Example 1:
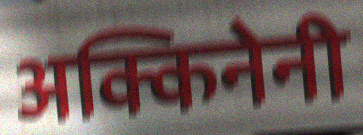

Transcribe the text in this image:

अक्किनेनी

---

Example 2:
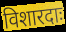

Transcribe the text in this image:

विशारदाः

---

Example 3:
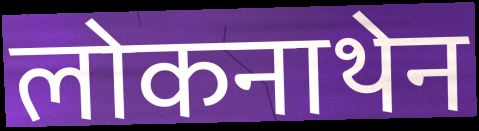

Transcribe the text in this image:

लोकनाथेन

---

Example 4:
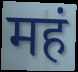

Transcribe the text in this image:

महं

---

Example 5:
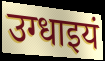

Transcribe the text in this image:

उग्धाइयं